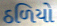
ઠળિયો